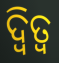
ଦ୍ୱିତ୍ୱ